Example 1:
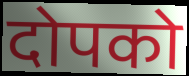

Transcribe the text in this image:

दोपको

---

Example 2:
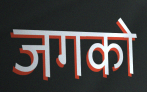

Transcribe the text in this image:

जगको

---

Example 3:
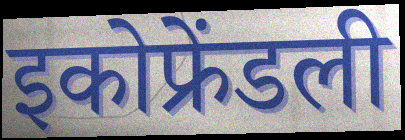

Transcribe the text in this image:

इकोफ्रेंडली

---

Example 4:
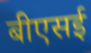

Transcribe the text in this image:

बीएसई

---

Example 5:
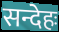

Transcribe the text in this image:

सन्देहः